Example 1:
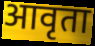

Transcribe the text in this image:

आवृता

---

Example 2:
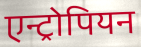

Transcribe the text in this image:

एन्ट्रोपियन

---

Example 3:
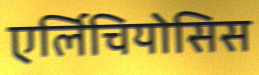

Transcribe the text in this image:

एर्लिचियोसिस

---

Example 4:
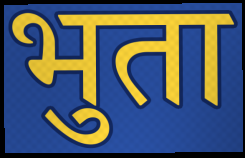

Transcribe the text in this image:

भुता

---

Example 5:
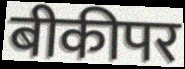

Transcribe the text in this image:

बीकीपर